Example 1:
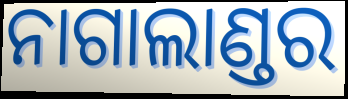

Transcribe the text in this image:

ନାଗାଲାଣ୍ଡର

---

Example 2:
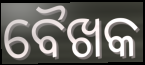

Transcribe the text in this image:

ବୈଖକ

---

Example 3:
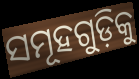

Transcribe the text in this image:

ସମୂହଗୁଡ଼ିକୁ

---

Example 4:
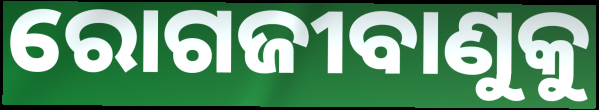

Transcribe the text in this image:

ରୋଗଜୀବାଣୁକୁ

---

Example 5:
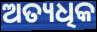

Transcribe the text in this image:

ଅତ୍ୟଧିକ